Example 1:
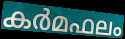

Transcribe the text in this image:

കർമഫലം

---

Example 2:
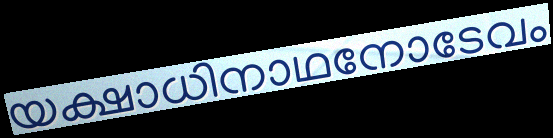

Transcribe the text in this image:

യക്ഷാധിനാഥനോടേവം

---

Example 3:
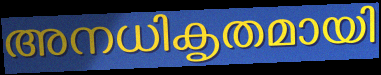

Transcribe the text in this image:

അനധികൃതമായി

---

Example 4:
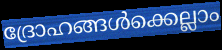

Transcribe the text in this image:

ദ്രോഹങ്ങൾക്കെല്ലാം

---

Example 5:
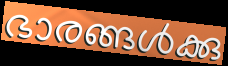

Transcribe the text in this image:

ഭാരങ്ങൾക്കു